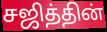
சஜித்தின்